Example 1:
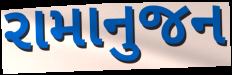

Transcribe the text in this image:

રામાનુજન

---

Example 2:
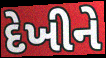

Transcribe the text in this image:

દેખીને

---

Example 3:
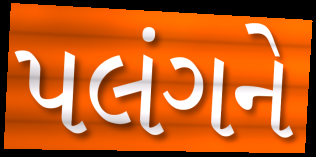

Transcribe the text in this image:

પલંગને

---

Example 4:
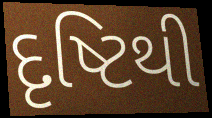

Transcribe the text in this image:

દૃષ્ટિથી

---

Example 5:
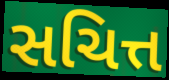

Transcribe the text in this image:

સચિત્ત